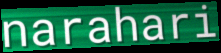
narahari